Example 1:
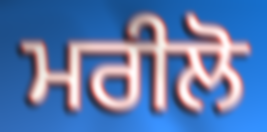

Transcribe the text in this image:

ਮਰੀਲੋ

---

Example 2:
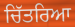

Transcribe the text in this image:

ਚਿੱਤਰਿਆ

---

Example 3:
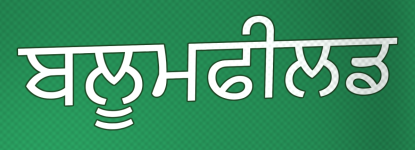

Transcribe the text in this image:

ਬਲੂਮਫੀਲਡ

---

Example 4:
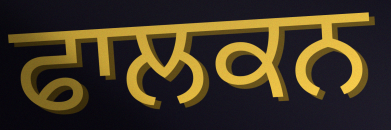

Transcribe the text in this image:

ਫਾਲਕਨ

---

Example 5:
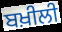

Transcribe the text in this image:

ਬਖ਼ੀਲੀ